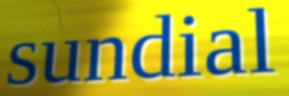
sundial